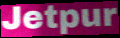
Jetpur